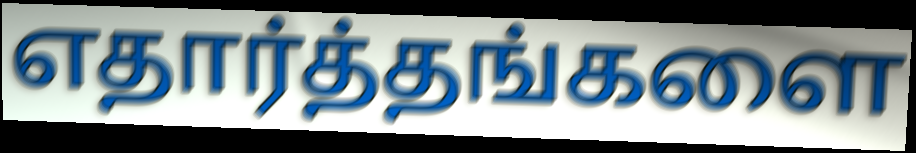
எதார்த்தங்களை